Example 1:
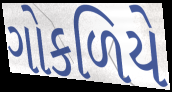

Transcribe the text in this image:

ગોકળિયે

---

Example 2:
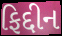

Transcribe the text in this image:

ફિદ્દીન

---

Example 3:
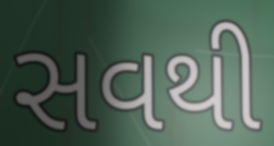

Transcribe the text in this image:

સવથી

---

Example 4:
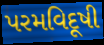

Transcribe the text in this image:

પરમવિદૂષી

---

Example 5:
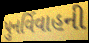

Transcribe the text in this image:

પુનર્વિવાહની